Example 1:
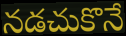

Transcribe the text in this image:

నడచుకొనే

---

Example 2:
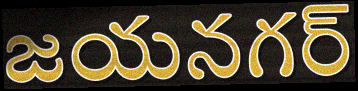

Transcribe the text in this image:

జయనగర్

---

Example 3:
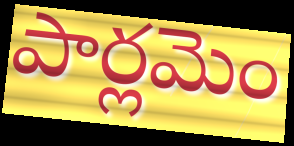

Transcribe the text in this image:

పార్లమెం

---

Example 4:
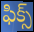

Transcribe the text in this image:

ఫిక్స్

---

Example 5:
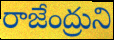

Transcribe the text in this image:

రాజేంద్రుని